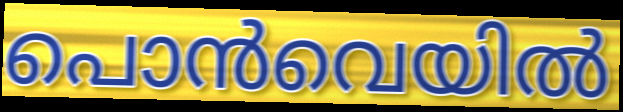
പൊൻവെയിൽ